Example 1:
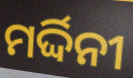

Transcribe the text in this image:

ମର୍ଦ୍ଦିନୀ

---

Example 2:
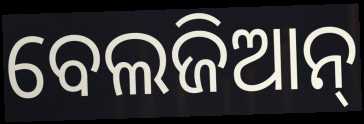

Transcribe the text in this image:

ବେଲଜିଆନ୍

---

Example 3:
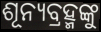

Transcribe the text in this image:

ଶୂନ୍ୟବ୍ରହ୍ମଙ୍କୁ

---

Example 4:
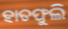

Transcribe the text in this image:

ହାତଫୁଲି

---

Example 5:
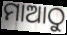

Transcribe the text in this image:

ମାଆଠୁ